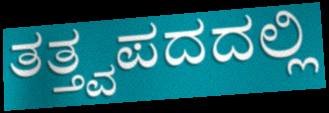
ತತ್ತ್ವಪದದಲ್ಲಿ